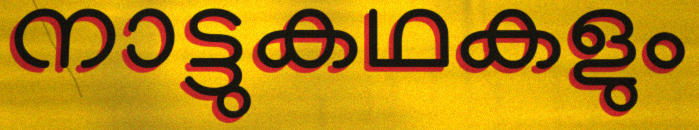
നാട്ടുകഥകളും